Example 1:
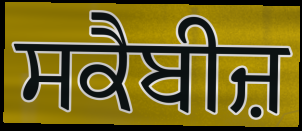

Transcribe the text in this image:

ਸਕੈਬੀਜ਼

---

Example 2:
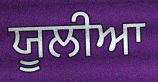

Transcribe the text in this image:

ਯੂਲੀਆ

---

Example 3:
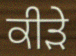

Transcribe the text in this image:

ਕੀੜੇ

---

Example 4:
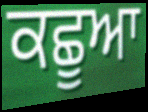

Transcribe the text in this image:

ਕਛੂਆ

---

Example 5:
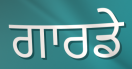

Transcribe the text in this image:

ਗਾਰਡੇ